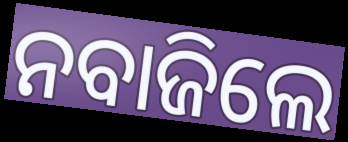
ନବାଜିଲେ